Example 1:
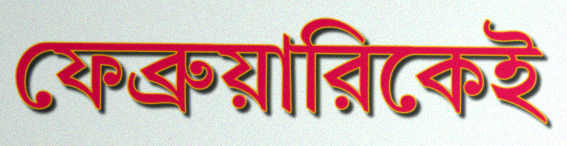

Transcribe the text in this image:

ফেব্রুয়ারিকেই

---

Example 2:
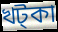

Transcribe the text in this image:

খট্‌কা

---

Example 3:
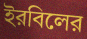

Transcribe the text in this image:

ইরবিলের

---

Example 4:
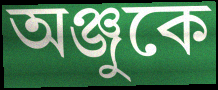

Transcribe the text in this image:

অঞ্জুকে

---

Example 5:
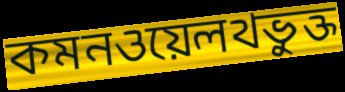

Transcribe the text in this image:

কমনওয়েলথভুক্ত